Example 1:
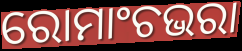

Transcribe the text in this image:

ରୋମାଂଚଭରା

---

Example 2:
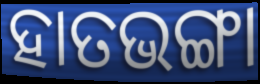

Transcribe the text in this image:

ହାତଭଙ୍ଗା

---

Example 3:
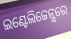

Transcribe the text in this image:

ଇଣ୍ଟେଲିଜେନ୍ସରେ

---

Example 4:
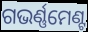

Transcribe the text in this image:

ଗଭର୍ଣ୍ଣମେଣ୍ଟ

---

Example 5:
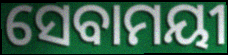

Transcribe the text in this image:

ସେବାମୟୀ